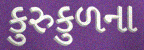
કુરુકુળના